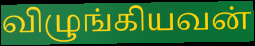
விழுங்கியவன்